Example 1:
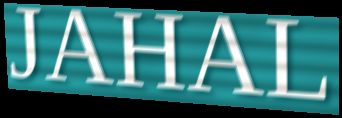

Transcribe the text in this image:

JAHAL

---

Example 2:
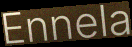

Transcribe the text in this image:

Ennela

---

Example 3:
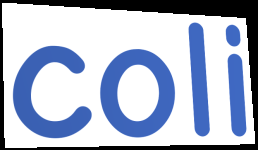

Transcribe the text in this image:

coli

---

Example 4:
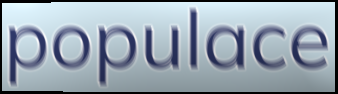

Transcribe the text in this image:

populace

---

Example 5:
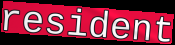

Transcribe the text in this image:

resident